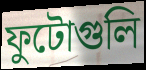
ফুটোগুলি